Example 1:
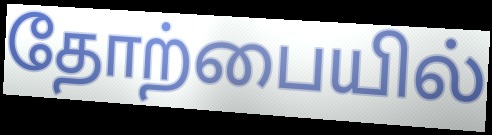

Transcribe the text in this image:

தோற்பையில்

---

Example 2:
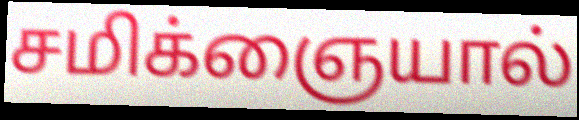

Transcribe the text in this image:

சமிக்ஞையால்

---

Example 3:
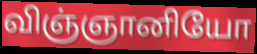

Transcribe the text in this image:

விஞ்ஞானியோ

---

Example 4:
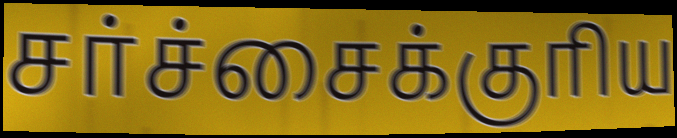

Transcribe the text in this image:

சர்ச்சைக்குரிய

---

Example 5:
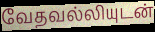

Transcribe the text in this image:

வேதவல்லியுடன்